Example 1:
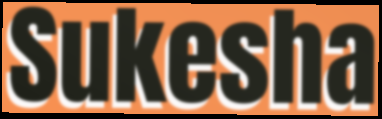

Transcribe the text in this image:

Sukesha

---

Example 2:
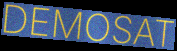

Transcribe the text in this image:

DEMOSAT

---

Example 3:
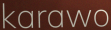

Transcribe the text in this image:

karawo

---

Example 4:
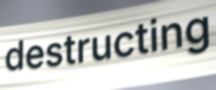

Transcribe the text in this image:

destructing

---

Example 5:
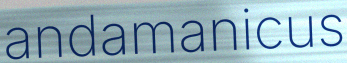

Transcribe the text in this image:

andamanicus